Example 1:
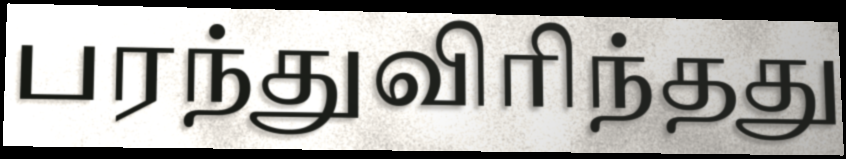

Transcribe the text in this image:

பரந்துவிரிந்தது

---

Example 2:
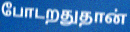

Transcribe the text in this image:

போடறதுதான்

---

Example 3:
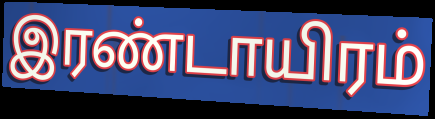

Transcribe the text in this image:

இரண்டாயிரம்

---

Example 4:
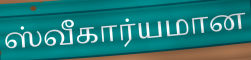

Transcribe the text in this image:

ஸ்வீகார்யமான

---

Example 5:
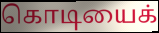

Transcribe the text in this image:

கொடியைக்